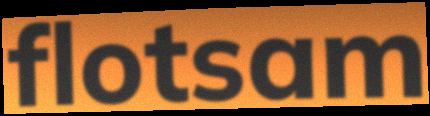
flotsam